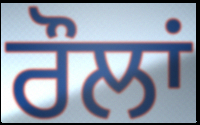
ਰੌਲਾਂ